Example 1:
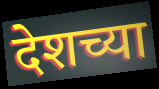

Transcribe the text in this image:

देशच्या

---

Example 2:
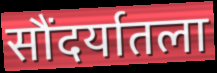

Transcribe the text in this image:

सौंदर्यातला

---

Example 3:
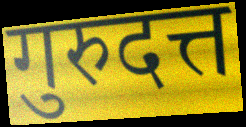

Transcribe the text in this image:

गुरुदत्त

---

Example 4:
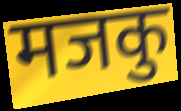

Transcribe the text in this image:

मजकु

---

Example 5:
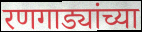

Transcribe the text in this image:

रणगाड्यांच्या